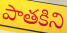
పాతకిని